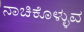
ನಾಚಿಕೊಳ್ಳುವ